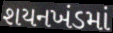
શયનખંડમાં